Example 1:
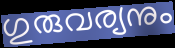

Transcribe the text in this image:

ഗുരുവര്യനും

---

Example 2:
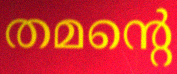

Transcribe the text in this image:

തമന്റെ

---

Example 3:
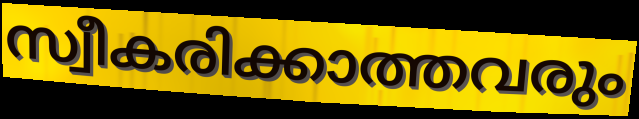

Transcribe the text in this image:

സ്വീകരിക്കാത്തവരും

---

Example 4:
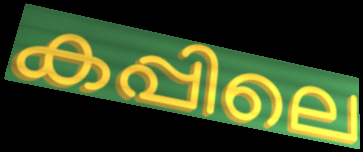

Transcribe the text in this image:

കപ്പിലെ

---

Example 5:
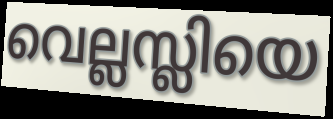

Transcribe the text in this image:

വെല്ലസ്ലിയെ